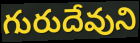
గురుదేవుని